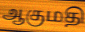
ஆகுமதி